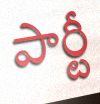
పార్టీ